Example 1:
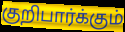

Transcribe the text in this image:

குறிபார்க்கும்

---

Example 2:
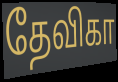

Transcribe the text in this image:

தேவிகா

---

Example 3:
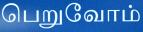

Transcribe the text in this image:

பெறுவோம்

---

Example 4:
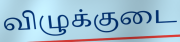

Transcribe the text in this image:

விழுக்குடை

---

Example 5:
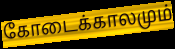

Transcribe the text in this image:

கோடைக்காலமும்